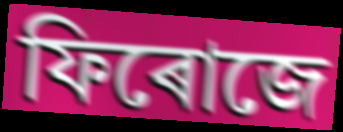
ফিৰোজে